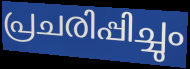
പ്രചരിപ്പിച്ചും